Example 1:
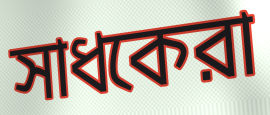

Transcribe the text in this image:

সাধকেরা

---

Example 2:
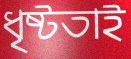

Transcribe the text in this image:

ধৃষ্টতাই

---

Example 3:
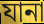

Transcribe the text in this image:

যানা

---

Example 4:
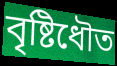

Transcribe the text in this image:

বৃষ্টিধৌত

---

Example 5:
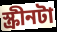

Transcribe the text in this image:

স্ক্রীনটা